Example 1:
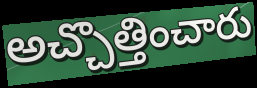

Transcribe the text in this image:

అచ్చొత్తించారు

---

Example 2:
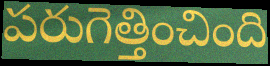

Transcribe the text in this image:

పరుగెత్తించింది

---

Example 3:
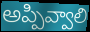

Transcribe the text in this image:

అప్పివ్వాలి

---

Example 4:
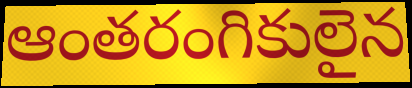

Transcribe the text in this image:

ఆంతరంగికులైన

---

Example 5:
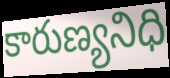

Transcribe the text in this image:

కారుణ్యనిధి